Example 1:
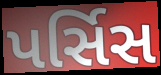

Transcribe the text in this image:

પર્સિસ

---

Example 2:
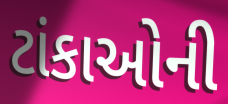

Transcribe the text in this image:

ટાંકાઓની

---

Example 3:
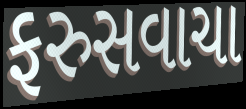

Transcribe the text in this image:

ફરુસવાચા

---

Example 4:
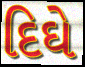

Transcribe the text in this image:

દિઘે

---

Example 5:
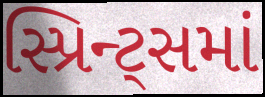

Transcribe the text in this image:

સ્પ્રિન્ટ્સમાં